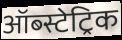
ऑब्स्टेट्रिक